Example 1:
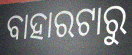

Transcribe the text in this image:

ବାହାରଟାରୁ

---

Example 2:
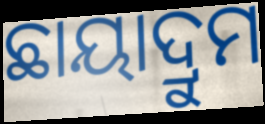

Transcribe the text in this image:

ଛାୟାଦ୍ରୁମ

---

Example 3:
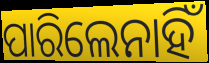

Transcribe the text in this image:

ପାରିଲେନାହିଁ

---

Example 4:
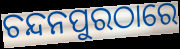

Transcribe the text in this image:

ଚନ୍ଦନପୁରଠାରେ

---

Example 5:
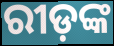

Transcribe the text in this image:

ରୀଡ଼ଙ୍କ